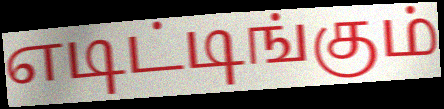
எடிட்டிங்கும்